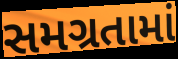
સમગ્રતામાં